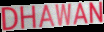
DHAWAN